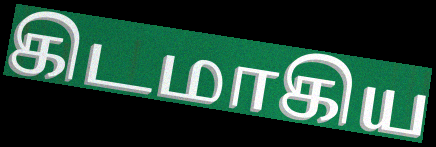
கிடமாகிய